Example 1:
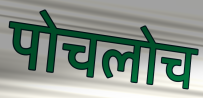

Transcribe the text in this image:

पोचलोच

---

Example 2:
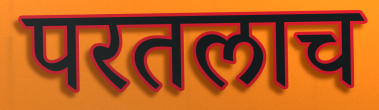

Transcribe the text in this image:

परतलाच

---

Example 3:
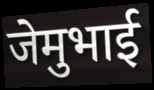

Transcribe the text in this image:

जेमुभाई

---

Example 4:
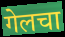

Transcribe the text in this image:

गेलचा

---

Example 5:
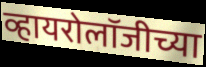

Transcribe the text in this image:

व्हायरोलॉजीच्या